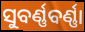
ସୁବର୍ଣ୍ଣବର୍ଣ୍ଣା